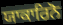
ਯਾਕਾਰਿਨੋ